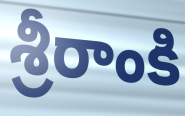
శ్రీరాంకి